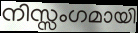
നിസ്സംഗമായി